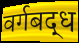
वर्गबद्ध